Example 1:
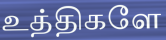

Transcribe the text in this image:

உத்திகளே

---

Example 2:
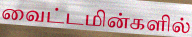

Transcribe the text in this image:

வைட்டமின்களில்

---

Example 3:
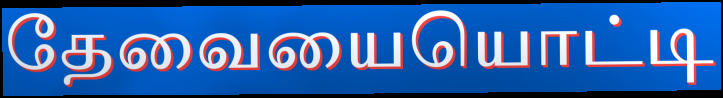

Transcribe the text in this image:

தேவையையொட்டி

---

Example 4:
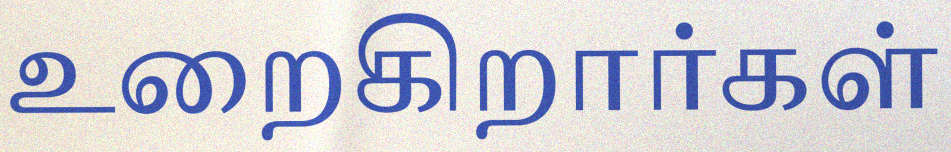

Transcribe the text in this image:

உறைகிறார்கள்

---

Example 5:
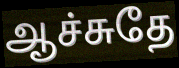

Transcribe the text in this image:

ஆச்சுதே